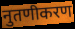
नुतणीकरण